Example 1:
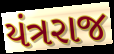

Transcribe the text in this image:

યંત્રરાજ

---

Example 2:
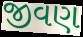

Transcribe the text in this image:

જીવણ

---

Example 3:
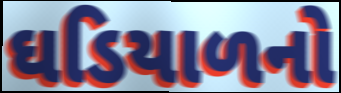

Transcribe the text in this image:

ઘડિયાળનો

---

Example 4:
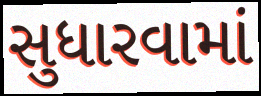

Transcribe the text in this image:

સુધારવામાં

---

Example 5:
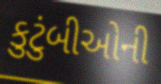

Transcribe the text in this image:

કુટુંબીઓની